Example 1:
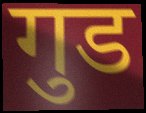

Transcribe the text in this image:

गुड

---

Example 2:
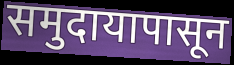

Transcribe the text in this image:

समुदायापासून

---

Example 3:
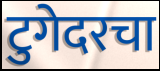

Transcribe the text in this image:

टुगेदरचा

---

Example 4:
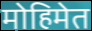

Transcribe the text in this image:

मोहिमेत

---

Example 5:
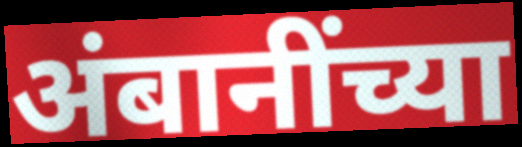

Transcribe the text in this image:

अंबानींच्या